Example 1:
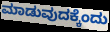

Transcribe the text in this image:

ಮಾಡುವುದಕ್ಕೆಂದು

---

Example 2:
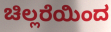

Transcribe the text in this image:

ಚಿಲ್ಲರೆಯಿಂದ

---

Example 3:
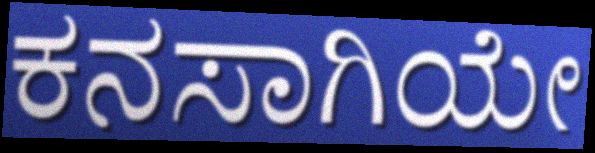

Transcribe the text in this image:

ಕನಸಾಗಿಯೇ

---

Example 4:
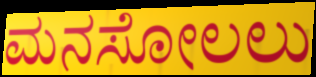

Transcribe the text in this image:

ಮನಸೋಲಲು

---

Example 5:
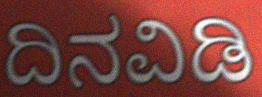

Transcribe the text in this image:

ದಿನವಿಡಿ